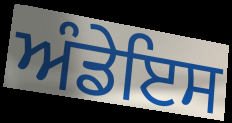
ਅੰਡੇਇਸ